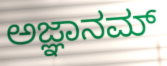
ಅಜ್ಞಾನಮ್